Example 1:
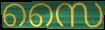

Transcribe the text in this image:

സൈ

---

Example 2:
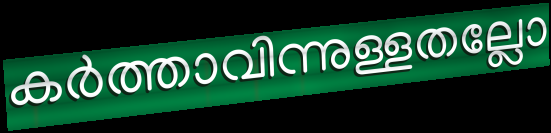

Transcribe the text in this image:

കർത്താവിന്നുള്ളതല്ലോ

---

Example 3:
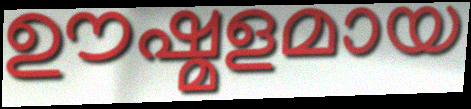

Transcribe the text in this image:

ഊഷ്മളമായ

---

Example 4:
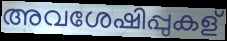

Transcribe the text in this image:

അവശേഷിപ്പുകള്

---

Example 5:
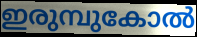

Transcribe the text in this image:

ഇരുമ്പുകോൽ